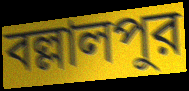
বল্লালপুর